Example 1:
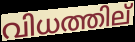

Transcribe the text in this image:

വിധത്തില്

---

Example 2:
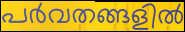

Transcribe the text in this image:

പർവതങ്ങളിൽ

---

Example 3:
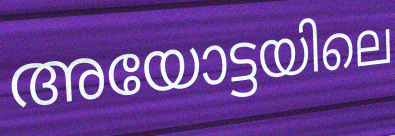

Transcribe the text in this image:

അയോട്ടയിലെ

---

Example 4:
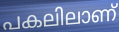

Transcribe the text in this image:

പകലിലാണ്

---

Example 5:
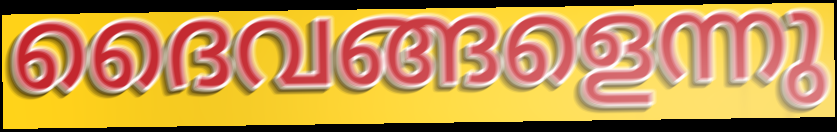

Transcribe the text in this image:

ദൈവങ്ങളെന്നു